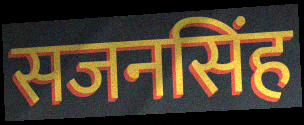
सजनसिंह